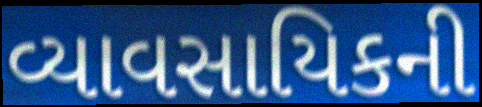
વ્યાવસાયિકની